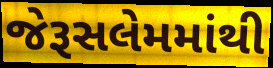
જેરૂસલેમમાંથી